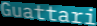
Guattari